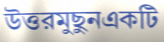
উত্তরমুছুনএকটি